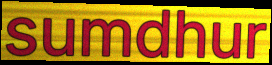
sumdhur